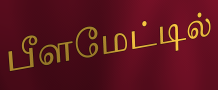
பீளமேட்டில்